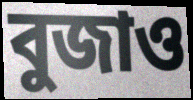
বুজাও